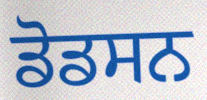
ਡੋਡਸਨ